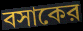
বসাকের